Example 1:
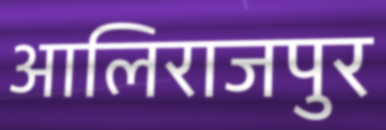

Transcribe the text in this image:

आलिराजपुर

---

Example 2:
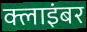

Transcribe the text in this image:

क्लाइंबर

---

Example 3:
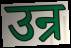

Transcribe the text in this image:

उन्र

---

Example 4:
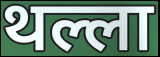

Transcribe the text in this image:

थल्ला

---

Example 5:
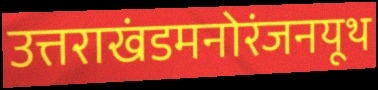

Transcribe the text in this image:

उत्तराखंडमनोरंजनयूथ